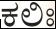
ಕಲಿಃ